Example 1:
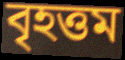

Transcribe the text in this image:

বৃহত্তম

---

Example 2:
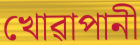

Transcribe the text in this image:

খোৱাপানী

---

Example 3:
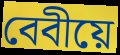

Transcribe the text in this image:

বেবীয়ে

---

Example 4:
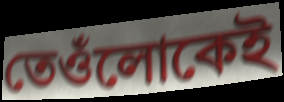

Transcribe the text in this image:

তেওঁলোকেই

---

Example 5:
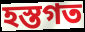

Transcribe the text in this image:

হস্তগত